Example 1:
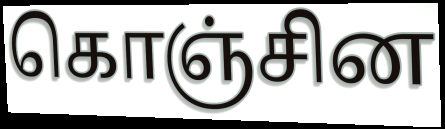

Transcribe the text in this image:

கொஞ்சின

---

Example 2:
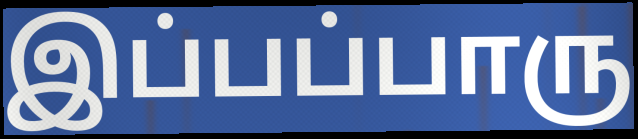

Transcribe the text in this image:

இப்பப்பாரு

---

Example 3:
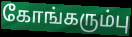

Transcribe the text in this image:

கோங்கரும்பு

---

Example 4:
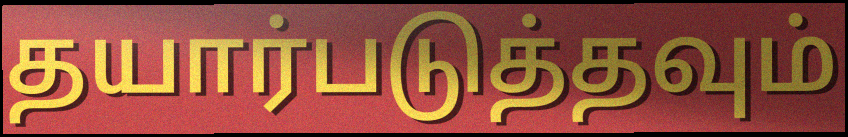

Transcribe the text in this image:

தயார்படுத்தவும்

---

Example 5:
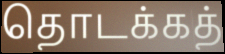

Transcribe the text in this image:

தொடக்கத்